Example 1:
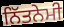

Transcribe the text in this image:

ਨਿੱਤਨੇਮੀ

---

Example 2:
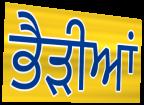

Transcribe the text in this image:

ਭੈੜੀਆਂ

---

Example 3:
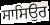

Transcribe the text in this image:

ਸਾਸਿਉਰ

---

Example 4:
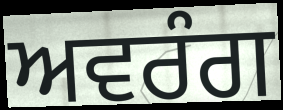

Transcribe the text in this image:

ਅਵਰੰਗ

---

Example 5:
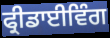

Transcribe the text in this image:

ਫ੍ਰੀਡਾਈਵਿੰਗ